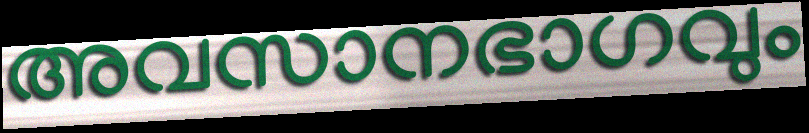
അവസാനഭാഗവും